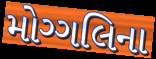
મોગ્ગલિના